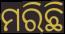
ମରିଛି